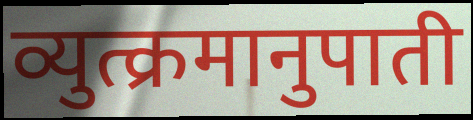
व्युत्क्रमानुपाती